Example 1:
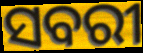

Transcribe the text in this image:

ସବରୀ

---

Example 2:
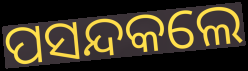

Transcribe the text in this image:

ପସନ୍ଦକଲେ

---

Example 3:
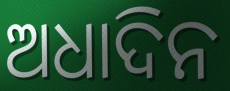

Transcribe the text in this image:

ଅଧାଦିନ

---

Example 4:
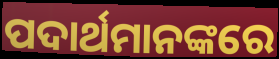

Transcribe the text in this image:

ପଦାର୍ଥମାନଙ୍କରେ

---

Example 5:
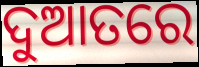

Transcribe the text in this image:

ଦୁଆତରେ